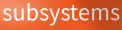
subsystems